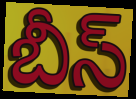
బీస్